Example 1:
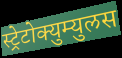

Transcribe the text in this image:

स्ट्रेटोक्युम्युलस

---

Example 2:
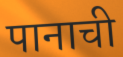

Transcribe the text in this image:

पानाची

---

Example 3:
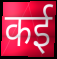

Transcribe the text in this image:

कई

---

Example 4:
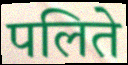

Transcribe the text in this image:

पलिते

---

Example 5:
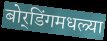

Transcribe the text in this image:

बोर्डिंगमधल्या